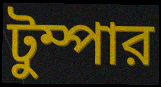
টুম্পার